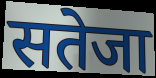
सतेजा